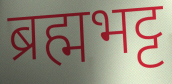
ब्रह्मभट्ट